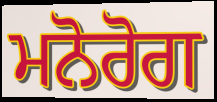
ਮਨੋਰੋਗ